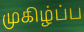
முகிழ்ப்ப